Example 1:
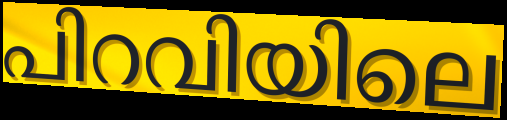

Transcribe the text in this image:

പിറവിയിലെ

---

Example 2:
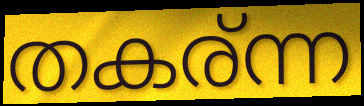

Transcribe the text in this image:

തകര്ന്ന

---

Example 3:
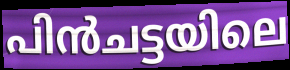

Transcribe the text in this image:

പിൻചട്ടയിലെ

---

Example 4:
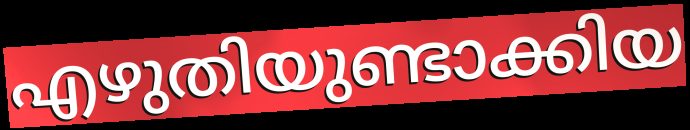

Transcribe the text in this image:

എഴുതിയുണ്ടാക്കിയ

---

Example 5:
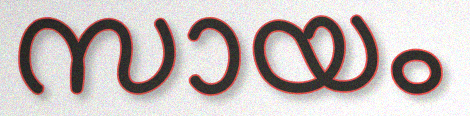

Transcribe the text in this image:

സായം